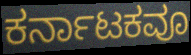
ಕರ್ನಾಟಕವೂ